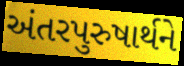
અંતરપુરુષાર્થને